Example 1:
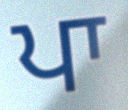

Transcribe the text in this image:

ਪਾ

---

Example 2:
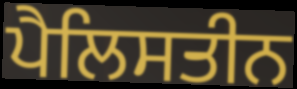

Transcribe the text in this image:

ਪੈਲਿਸਤੀਨ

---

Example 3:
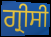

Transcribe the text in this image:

ਗ੍ਰੀਸੀ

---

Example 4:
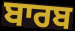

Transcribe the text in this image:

ਬਾਰਬ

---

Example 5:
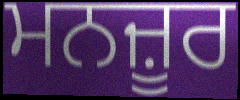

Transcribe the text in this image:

ਮਨਜ਼ੂਰ